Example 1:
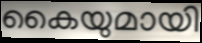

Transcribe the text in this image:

കൈയുമായി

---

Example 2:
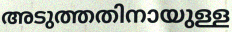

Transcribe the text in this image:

അടുത്തതിനായുള്ള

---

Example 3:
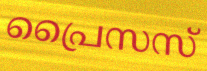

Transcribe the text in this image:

പ്രൈസസ്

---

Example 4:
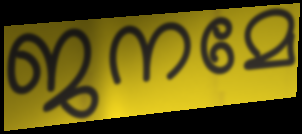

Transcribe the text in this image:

ജനമേ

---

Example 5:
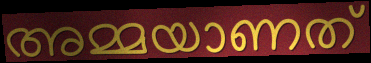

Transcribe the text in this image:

അമ്മയാണത്